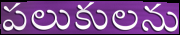
పలుకులను